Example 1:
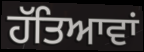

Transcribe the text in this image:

ਹੱਤਿਆਵਾਂ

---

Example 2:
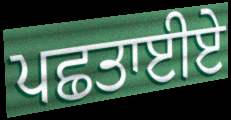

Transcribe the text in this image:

ਪਛਤਾਈਏ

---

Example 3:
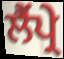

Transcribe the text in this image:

ਲੈਂਪ੍ਰੇ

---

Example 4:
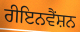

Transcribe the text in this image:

ਰੀਇਨਵੈਂਸ਼ਨ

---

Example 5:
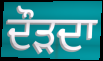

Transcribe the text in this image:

ਦੌੜਦਾ